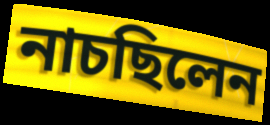
নাচছিলেন